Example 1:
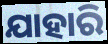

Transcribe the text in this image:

ଯାହାରି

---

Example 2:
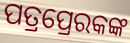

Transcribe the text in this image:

ପତ୍ରପ୍ରେରକଙ୍କ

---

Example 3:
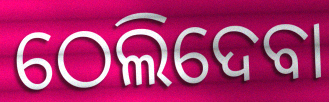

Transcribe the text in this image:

ଠେଲିଦେବା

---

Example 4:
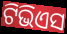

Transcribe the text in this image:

ଟିଭିଏସ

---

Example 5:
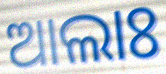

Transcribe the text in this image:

ଆଲାଃ